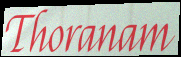
Thoranam